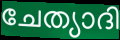
ചേത്യാദി